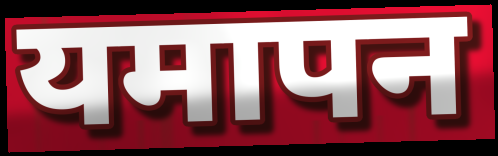
यमापन